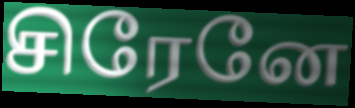
சிரேனே